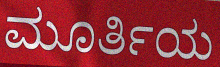
ಮೂರ್ತಿಯ